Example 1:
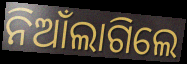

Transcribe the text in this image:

ନିଆଁଲାଗିଲେ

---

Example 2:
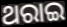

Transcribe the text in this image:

ଥରାଇ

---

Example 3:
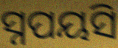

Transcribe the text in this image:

ସ୍ନପୟସି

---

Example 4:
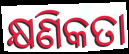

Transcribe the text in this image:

କ୍ଷଣିକତା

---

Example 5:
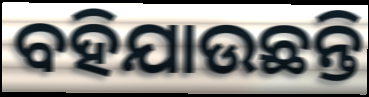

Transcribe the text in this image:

ବହିଯାଉଛନ୍ତି